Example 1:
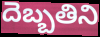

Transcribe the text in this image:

దెబ్బతిని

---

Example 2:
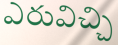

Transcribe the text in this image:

ఎరువిచ్చి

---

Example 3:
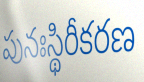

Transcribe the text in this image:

పునఃస్థిరీకరణ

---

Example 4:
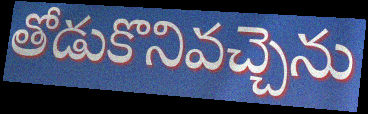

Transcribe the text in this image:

తోడుకొనివచ్చెను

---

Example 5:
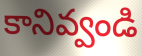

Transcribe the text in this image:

కానివ్వండి